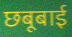
छबूबाई